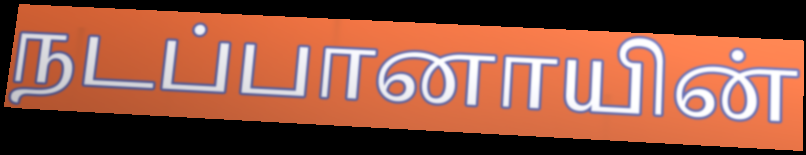
நடப்பானாயின்